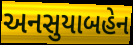
અનસુયાબહેન